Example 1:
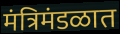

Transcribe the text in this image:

मंत्रिमंडळात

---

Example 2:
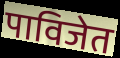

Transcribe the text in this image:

पाविजेत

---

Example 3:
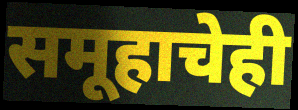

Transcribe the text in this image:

समूहाचेही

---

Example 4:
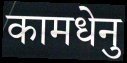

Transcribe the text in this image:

कामधेनु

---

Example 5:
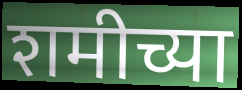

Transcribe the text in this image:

शमीच्या